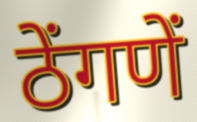
ठेंगणें